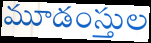
మూడంస్తుల